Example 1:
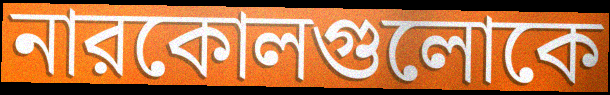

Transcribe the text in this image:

নারকোলগুলোকে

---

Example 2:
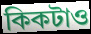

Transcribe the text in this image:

কিকটাও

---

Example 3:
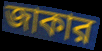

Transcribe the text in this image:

জাকার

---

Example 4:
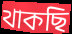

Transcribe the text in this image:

থাকছি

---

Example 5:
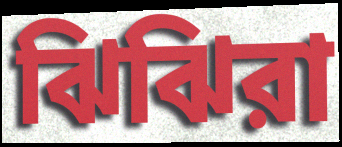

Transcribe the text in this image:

ঝিঝিরা